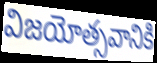
విజయోత్సవానికి